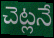
చెట్లనే